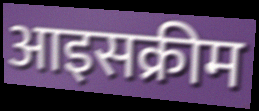
आइसक्रीम